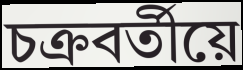
চক্ৰবৰ্তীয়ে